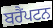
ਬਰੈਂਪਟਨ